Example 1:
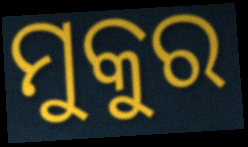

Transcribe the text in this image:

ମୁକୁର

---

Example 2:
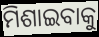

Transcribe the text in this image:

ମିଶାଇବାକୁ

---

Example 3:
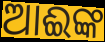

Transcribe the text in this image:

ଆଈଙ୍କ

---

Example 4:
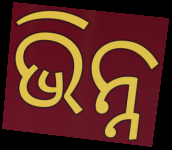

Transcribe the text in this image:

ଭିନ୍ନ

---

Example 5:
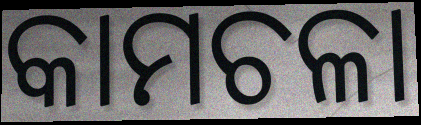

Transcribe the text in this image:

କାମଚଳା